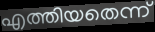
എത്തിയതെന്ന്